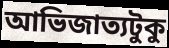
আভিজাত্যটুকু